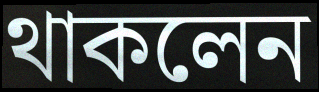
থাকলেন